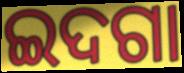
ଇଦଗା